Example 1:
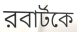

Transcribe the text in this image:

রবার্টকে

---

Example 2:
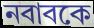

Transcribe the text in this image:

নবাবকে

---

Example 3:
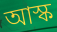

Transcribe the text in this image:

আস্ক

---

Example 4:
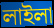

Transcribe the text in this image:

লাইলা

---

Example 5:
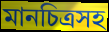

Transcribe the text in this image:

মানচিত্রসহ